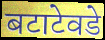
बटाटेवडे